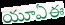
యూఏఈ